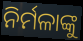
ନିର୍ମଳାଙ୍କୁ